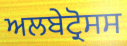
ਅਲਬੇਟ੍ਰੋਸਸ